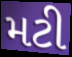
મટી